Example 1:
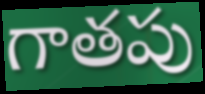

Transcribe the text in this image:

గాతపు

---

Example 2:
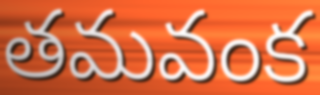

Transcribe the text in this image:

తమవంక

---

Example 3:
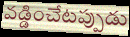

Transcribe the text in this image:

వడ్డించేటప్పుడు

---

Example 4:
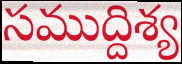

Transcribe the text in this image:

సముద్దిశ్య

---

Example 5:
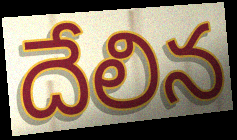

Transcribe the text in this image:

దేలిన